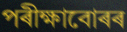
পৰীক্ষাবোৰৰ